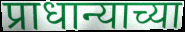
प्राधान्याच्या